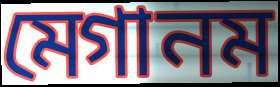
মেগানম